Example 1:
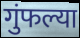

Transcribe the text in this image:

गुंफल्या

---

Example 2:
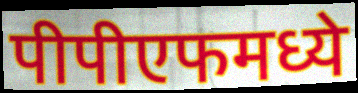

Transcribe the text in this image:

पीपीएफमध्ये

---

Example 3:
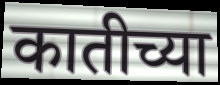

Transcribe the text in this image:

कातीच्या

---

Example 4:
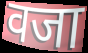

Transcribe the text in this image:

वजा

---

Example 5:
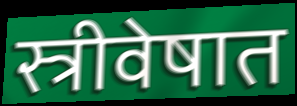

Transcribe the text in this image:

स्त्रीवेषात